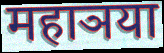
महाञया